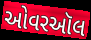
ઓવરઑલ